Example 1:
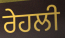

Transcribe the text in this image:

ਰੇਹਲੀ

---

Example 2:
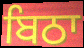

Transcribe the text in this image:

ਬਿਠਾ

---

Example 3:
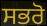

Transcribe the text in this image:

ਸਭਰੋ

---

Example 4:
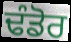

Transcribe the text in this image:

ਢੰਡੋਰ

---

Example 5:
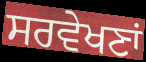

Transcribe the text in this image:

ਸਰਵੇਖਣਾਂ